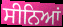
ਸੀਨਿਆਂ